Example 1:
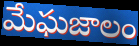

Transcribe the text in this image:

మేఘజాలం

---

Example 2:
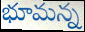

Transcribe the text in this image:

భూమన్న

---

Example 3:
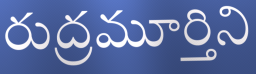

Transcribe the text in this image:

రుద్రమూర్తిని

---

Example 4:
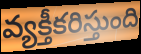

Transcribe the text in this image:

వ్యక్తీకరిస్తుంది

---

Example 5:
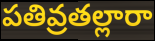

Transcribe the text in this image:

పతివ్రతల్లారా